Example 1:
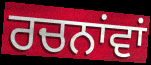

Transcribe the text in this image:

ਰਚਨਾਂਵਾਂ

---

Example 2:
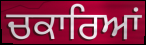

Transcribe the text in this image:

ਚਕਾਰਿਆਂ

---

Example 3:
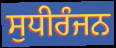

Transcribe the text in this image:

ਸੁਧੀਰੰਜਨ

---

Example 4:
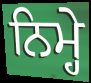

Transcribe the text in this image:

ਨਿਮ੍ਹੇ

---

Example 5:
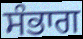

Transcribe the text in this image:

ਸੰਭਾਗ